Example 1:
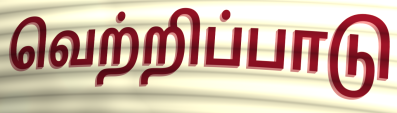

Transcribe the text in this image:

வெற்றிப்பாடு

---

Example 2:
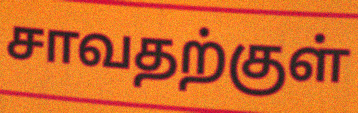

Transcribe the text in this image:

சாவதற்குள்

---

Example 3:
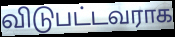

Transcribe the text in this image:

விடுபட்டவராக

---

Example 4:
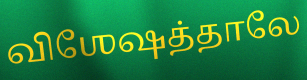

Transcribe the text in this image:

விஶேஷத்தாலே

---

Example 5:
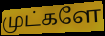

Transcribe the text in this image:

முட்களே